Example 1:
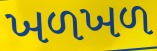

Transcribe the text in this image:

ખળખળ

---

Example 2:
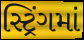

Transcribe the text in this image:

સ્ટ્રિંગમાં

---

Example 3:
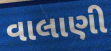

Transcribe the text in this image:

વાલાણી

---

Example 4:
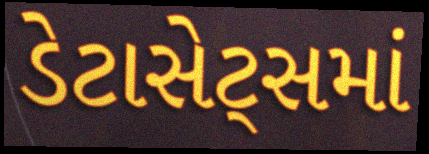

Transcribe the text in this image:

ડેટાસેટ્સમાં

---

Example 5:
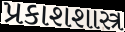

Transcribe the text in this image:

પ્રકાશશાસ્ત્ર